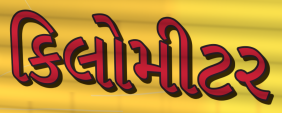
કિલોમીટર